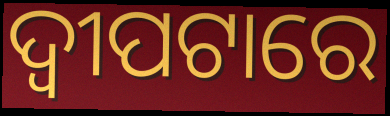
ଦ୍ୱୀପଟାରେ